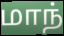
மாந்